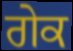
ਗੇਕ